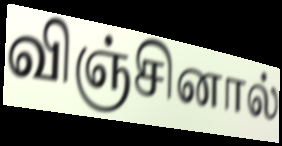
விஞ்சினால்